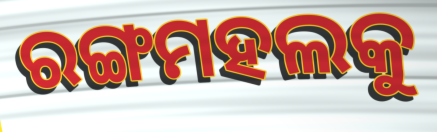
ରଙ୍ଗମହଲକୁ